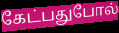
கேட்பதுபோல்